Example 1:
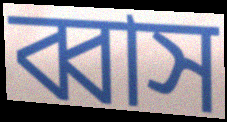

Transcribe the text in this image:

ব্বাস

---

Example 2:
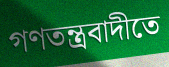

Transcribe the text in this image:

গণতন্ত্রবাদীতে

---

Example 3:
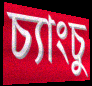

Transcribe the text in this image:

চ্যাংচু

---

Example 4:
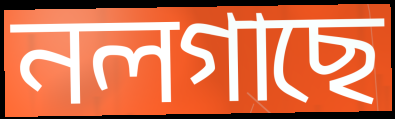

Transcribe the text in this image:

নলগাছে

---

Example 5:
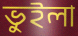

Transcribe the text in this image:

ভুইলা